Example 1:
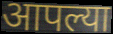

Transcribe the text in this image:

आपल्या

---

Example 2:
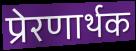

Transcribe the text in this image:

प्रेरणार्थक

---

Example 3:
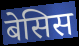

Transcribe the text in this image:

बेसिस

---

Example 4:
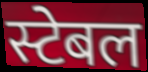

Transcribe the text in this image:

स्‍टेबल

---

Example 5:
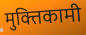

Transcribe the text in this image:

मुक्तिकामी